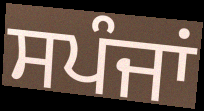
ਸਪੰਜਾਂ